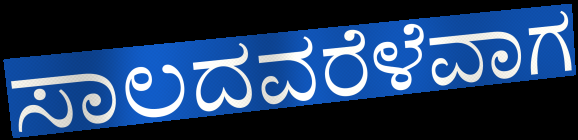
ಸಾಲದವರೆಳೆವಾಗ